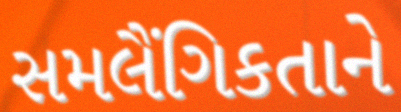
સમલૈંગિકતાને